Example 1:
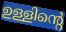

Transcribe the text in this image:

ഉള്ളിന്റെ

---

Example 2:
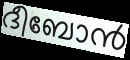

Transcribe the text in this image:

ദീബോൻ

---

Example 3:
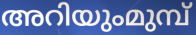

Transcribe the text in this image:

അറിയുംമുമ്പ്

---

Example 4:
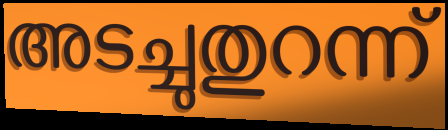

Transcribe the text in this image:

അടച്ചുതുറന്ന്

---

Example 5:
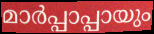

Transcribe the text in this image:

മാർപ്പാപ്പായും